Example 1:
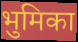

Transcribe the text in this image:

भुमिका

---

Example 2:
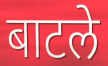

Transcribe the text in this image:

बाटले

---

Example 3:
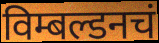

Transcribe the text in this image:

विम्बल्डनचं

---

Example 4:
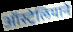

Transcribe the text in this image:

ऑस्ट्रेलियाने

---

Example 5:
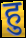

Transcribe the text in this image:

हु